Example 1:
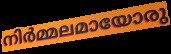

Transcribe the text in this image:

നിർമ്മലമായോരു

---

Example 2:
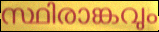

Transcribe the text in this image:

സ്ഥിരാങ്കവും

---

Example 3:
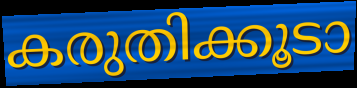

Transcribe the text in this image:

കരുതിക്കൂടാ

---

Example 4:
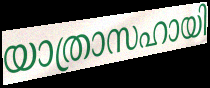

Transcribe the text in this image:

യാത്രാസഹായി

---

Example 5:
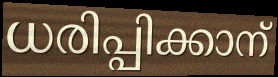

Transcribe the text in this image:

ധരിപ്പിക്കാന്